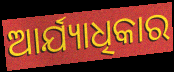
ଆର୍ଯ୍ୟାଧିକାର